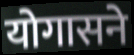
योगासने